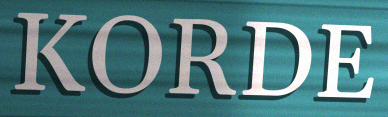
KORDE